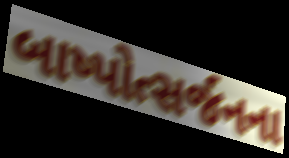
બાષ્પોત્સર્જનના